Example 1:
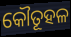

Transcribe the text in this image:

କୌତୂହଳ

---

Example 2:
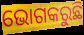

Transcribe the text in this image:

ଭୋଗକରୁଛି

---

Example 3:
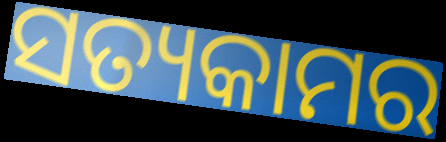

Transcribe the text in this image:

ସତ୍ୟକାମର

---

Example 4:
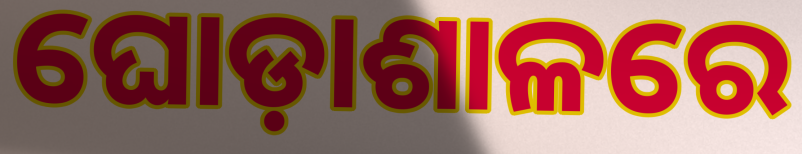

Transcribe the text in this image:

ଘୋଡ଼ାଶାଳରେ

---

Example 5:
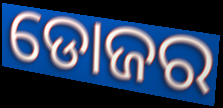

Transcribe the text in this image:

ଡୋଜର